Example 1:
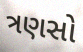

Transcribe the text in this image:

ત્રણસો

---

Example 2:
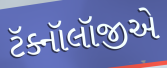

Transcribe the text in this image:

ટૅક્નૉલૉજીએ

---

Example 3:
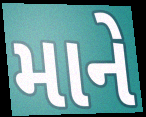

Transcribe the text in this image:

માને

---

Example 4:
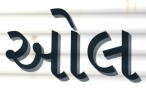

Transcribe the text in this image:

ઓલ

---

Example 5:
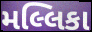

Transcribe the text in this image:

મલ્લિકા